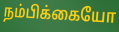
நம்பிக்கையோ